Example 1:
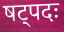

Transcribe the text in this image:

षट्पदः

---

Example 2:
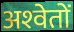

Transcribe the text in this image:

अश्‍वेतों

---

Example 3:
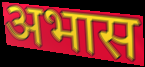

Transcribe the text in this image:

अभास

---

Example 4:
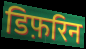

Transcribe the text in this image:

डिफ़रिन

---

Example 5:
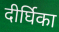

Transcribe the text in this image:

दीर्घिका